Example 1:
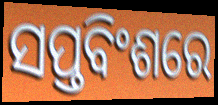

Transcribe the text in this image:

ସପ୍ତବିଂଶରେ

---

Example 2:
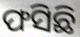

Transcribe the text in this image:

ଫସିଛି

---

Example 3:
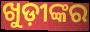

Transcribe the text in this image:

ଖୁଡ଼ୀଙ୍କର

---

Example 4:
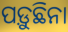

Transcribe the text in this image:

ପଡ଼ୁଛିନା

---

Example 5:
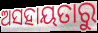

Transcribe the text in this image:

ଅସହାୟତାରୁ